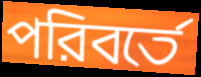
পরিবর্তে